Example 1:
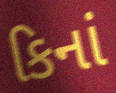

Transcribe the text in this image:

કિનાં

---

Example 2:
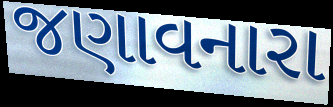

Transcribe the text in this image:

જણાવનારા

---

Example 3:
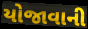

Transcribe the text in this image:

યોજાવાની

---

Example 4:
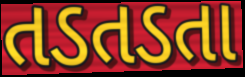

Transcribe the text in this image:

તડતડતા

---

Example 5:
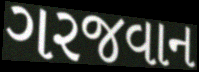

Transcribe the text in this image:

ગરજવાન